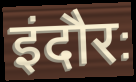
इंदौरः